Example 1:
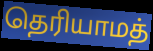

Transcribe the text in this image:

தெரியாமத்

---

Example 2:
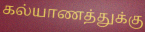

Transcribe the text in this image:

கல்யாணத்துக்கு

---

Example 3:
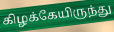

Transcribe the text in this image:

கிழக்கேயிருந்து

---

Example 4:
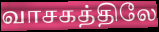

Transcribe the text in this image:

வாசகத்திலே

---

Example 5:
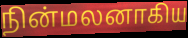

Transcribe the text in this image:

நின்மலனாகிய